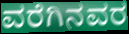
ವರೆಗಿನವರ